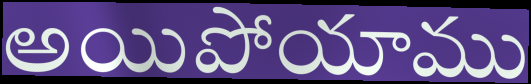
అయిపోయాము